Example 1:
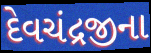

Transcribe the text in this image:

દેવચંદ્રજીના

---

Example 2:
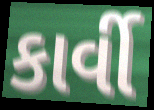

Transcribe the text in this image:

કાર્વી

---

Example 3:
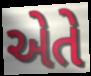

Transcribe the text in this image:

એતે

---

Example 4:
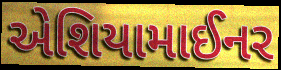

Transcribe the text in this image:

એશિયામાઈનર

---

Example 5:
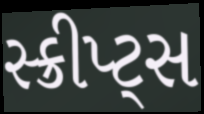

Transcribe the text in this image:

સ્ક્રીપ્ટ્સ